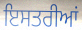
ਇਸਤਰੀਆਂ